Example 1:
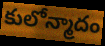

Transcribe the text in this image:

కులోన్మాదం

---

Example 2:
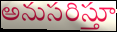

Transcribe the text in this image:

అనుసరిస్తూ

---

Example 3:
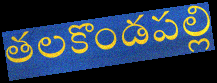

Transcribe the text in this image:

తలకొండపల్లి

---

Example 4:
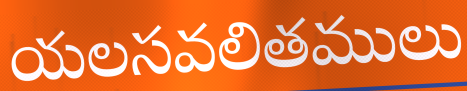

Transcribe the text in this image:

యలసవలితములు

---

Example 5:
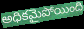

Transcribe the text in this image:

అధికమైపోయింది